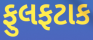
ફુલફટાક